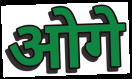
ओगे